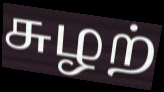
சுழற்